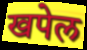
खपेल